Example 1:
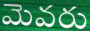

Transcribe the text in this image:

మెవరు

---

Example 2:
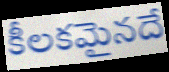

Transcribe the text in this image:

కీలకమైనదే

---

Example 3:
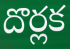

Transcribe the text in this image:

దొర్లక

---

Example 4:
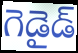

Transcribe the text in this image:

గెడైడ్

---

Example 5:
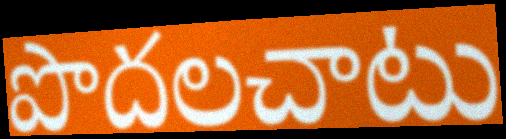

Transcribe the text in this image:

పొదలచాటు